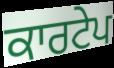
ਕਾਰਟੇਪ